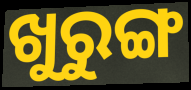
ଖୁରୁଙ୍ଗ